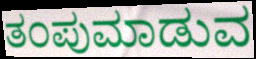
ತಂಪುಮಾಡುವ